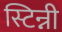
स्टिन्नी